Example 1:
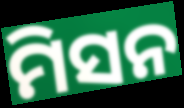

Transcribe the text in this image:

ମିସନ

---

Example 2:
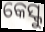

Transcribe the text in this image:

କେସ୍କୁ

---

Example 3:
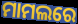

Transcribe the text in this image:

ମାମଲରେ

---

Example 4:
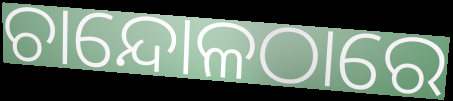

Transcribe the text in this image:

ଚାନ୍ଦୋଳଠାରେ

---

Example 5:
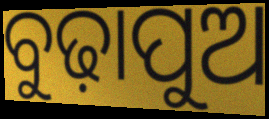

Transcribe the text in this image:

ବୁଢ଼ାପୁଅ